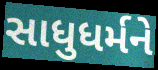
સાધુધર્મને